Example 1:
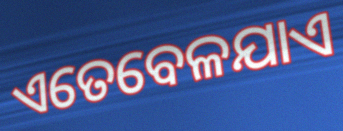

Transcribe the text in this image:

ଏତେବେଳଯାଏ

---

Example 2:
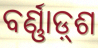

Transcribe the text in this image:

ବର୍ଣ୍ଣାଡ଼୍‌ଶ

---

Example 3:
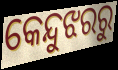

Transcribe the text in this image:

କେନ୍ଦୁଝରରୁ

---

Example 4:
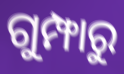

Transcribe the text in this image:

ଗୁମ୍ଫାରୁ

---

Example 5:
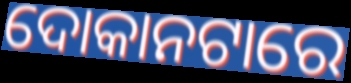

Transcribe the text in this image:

ଦୋକାନଟାରେ